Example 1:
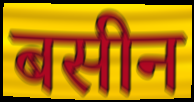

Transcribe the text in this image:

बसीन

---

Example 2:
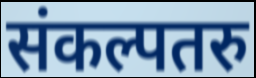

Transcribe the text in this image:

संकल्पतरु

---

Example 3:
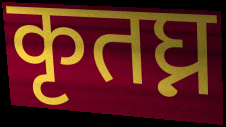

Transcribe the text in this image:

कृतघ्न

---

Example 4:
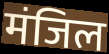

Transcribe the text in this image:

मंजिल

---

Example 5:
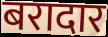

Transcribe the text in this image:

बरादार